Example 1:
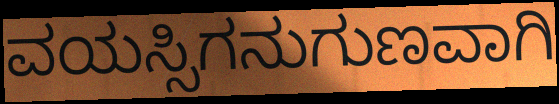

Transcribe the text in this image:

ವಯಸ್ಸಿಗನುಗುಣವಾಗಿ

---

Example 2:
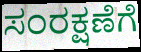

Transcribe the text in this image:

ಸಂರಕ್ಷಣೆಗೆ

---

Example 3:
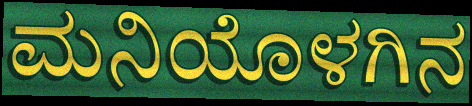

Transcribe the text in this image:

ಮನಿಯೊಳಗಿನ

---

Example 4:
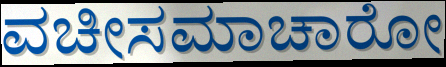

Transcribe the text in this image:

ವಚೀಸಮಾಚಾರೋ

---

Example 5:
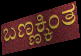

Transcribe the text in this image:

ಬಣ್ಣಕ್ಕಿಂತ